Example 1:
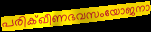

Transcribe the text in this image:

പരിക്ഖീണഭവസംയോജനാ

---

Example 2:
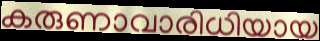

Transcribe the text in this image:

കരുണാവാരിധിയായ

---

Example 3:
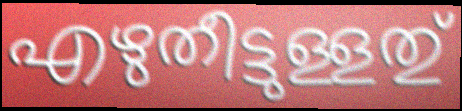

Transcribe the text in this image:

എഴുതീട്ടുള്ളതു്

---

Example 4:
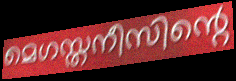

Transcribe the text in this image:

മെഗസ്തനീസിന്റെ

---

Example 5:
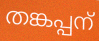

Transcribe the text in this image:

തങ്കപ്പന്